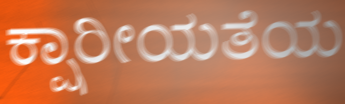
ಕ್ಷಾರೀಯತೆಯ